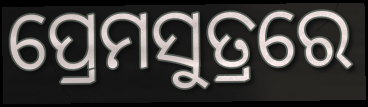
ପ୍ରେମସୁତ୍ରରେ